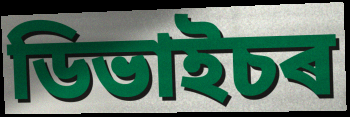
ডিভাইচৰ